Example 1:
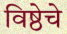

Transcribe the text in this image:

विष्ठेचे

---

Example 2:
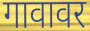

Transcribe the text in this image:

गावावर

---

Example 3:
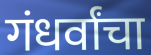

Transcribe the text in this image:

गंधर्वांचा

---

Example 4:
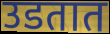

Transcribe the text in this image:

उडतात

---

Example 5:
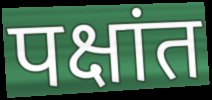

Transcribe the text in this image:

पक्षांत